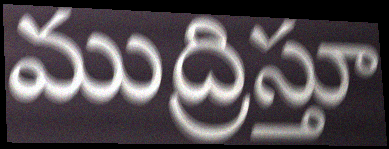
ముద్రిస్తూ